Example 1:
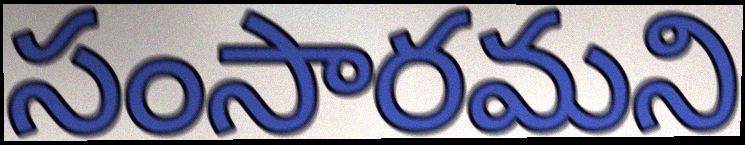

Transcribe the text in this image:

సంసారమని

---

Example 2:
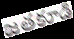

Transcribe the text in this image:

జతకూడి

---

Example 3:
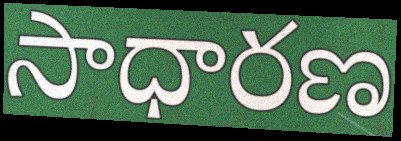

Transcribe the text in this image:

సాధారణ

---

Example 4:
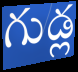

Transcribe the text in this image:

గుడ్ల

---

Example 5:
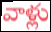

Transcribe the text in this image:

వాళ్లు